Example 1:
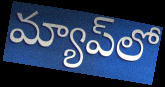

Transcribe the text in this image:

మ్యాప్‌లో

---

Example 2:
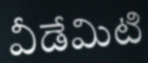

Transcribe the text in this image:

వీడేమిటి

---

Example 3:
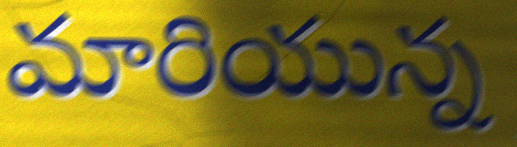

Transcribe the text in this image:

మారియున్న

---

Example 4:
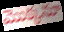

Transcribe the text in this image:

మొక్కనూ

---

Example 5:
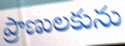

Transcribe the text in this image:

ప్రాణులకును